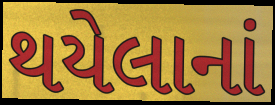
થયેલાનાં